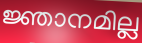
ജ്ഞാനമില്ല